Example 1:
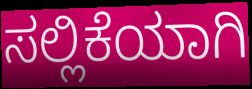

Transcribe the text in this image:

ಸಲ್ಲಿಕೆಯಾಗಿ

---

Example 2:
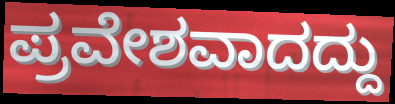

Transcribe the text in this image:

ಪ್ರವೇಶವಾದದ್ದು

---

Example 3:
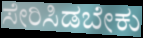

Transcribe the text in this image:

ಸೇರಿಸಿಡಬೇಕು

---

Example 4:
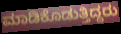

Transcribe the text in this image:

ಮಾಡಿಕೊಡುತ್ತಿದ್ದರು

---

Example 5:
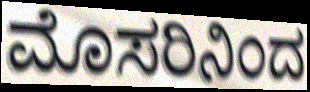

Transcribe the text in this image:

ಮೊಸರಿನಿಂದ